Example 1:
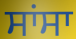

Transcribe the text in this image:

ਸਾਂਸਾ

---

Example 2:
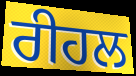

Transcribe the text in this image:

ਰੀਹਲ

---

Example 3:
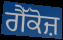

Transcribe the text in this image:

ਗੈੱਕੋਜ਼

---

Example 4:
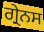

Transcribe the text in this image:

ਗ੍ਰੇਨਸ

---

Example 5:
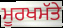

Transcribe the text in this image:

ਮੂਰਖਮੱਤੇ